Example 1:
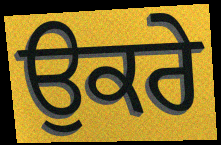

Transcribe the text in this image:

ਉਕਰੇ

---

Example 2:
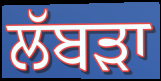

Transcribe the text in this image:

ਲੱਬੜਾ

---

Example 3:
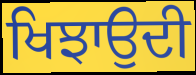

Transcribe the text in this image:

ਖਿਝਾਉਦੀ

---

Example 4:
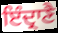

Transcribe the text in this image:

ਇੰਦ੍ਰਾਣੈ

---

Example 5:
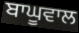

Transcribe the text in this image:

ਬਾਘੂਵਾਲ